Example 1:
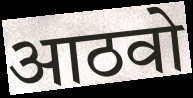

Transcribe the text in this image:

आठवो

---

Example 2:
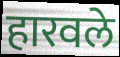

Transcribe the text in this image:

हारवले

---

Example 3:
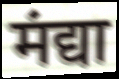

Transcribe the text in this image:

मंद्या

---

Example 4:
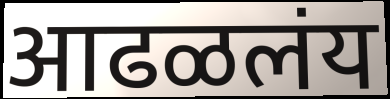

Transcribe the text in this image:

आढळलंय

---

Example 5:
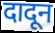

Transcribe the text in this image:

दादून